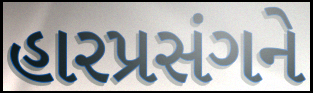
હારપ્રસંગને